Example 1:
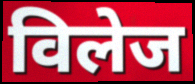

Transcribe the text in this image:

विलेज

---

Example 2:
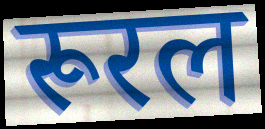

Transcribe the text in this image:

रूरल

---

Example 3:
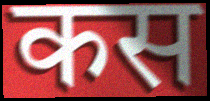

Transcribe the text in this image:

कस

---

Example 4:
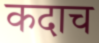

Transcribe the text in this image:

कदाच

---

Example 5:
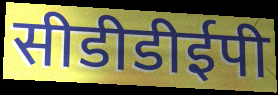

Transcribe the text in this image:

सीडीडीईपी